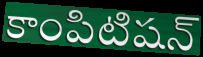
కాంపిటిషన్